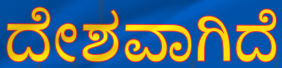
ದೇಶವಾಗಿದೆ